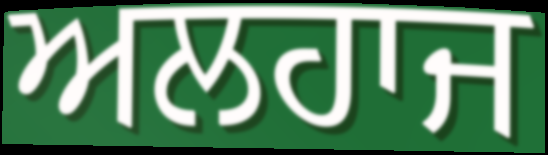
ਅਲਹਾਜ